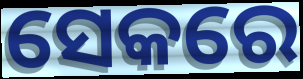
ସେକରେ